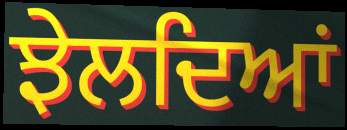
ਝੇਲਦਿਆਂ